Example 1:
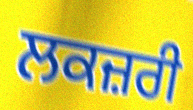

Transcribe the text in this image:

ਲਕਜ਼ਰੀ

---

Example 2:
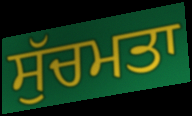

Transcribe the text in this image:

ਸੁੱਚਮਤਾ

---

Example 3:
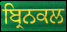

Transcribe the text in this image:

ਬ੍ਰਿਨਕਲ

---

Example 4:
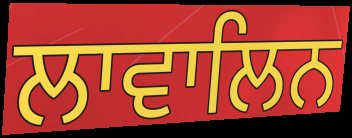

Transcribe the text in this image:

ਲਾਵਾਲਿਨ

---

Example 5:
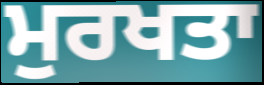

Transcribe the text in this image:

ਮੁਰਖਤਾ